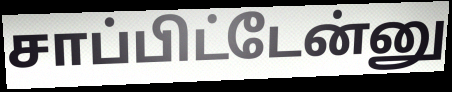
சாப்பிட்டேன்னு